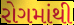
રોગમાંથી